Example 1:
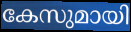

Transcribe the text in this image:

കേസുമായി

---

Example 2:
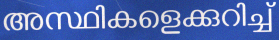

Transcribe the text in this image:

അസ്ഥികളെക്കുറിച്ച്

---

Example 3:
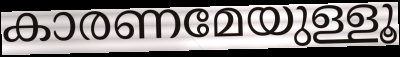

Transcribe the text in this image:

കാരണമേയുള്ളൂ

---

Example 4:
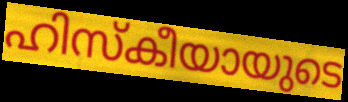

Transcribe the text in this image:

ഹിസ്കീയായുടെ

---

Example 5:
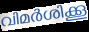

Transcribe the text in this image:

വിമർശിക്കൂ